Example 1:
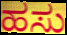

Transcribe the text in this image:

ಹಸು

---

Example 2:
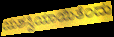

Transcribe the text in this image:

ಯಶಸ್ವಿಯಾಯಿತೆಂದು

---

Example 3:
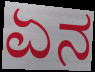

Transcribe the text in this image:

ಏನ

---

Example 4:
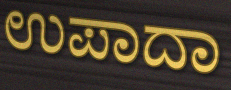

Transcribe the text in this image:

ಉಪಾದಾ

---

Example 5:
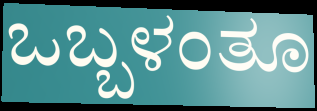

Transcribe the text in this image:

ಒಬ್ಬಳಂತೂ